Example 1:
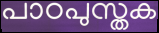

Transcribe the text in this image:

പാഠപുസ്തക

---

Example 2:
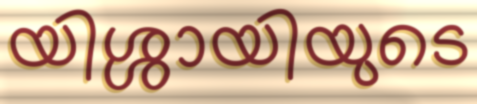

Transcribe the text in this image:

യിശ്ശായിയുടെ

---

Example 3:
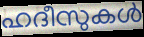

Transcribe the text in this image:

ഹദീസുകൾ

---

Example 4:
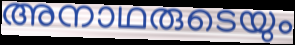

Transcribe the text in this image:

അനാഥരുടെയും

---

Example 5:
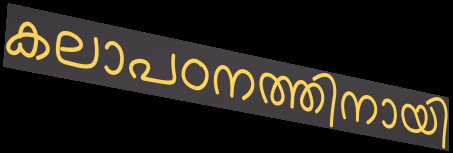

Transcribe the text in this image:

കലാപഠനത്തിനായി